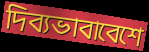
দিব্যভাবাবেশে